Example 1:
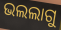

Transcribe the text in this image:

ଭଲଲାଗୁ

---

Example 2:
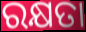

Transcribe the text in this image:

ରକ୍ଷତା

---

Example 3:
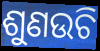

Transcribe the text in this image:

ଶୁଣଉଚି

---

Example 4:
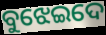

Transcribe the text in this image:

ବୁଝେଇଦେ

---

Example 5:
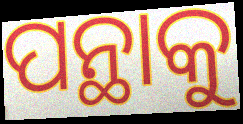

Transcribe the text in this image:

ପନ୍ଥାକୁ